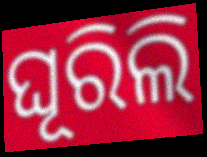
ଘୂରିଲି